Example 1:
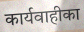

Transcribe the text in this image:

कार्यवाहीका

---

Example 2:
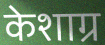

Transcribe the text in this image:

केशाग्र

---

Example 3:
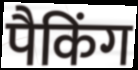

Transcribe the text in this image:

पैकिंग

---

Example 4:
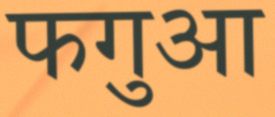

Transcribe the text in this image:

फगुआ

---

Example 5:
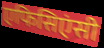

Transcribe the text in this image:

एफिसिएंसी